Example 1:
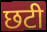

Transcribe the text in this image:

छटी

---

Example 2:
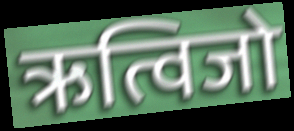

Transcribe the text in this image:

ऋत्विजो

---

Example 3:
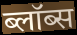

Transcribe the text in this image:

ब्लॉब्स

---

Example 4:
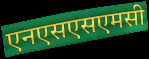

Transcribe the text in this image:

एनएसएसएमसी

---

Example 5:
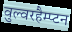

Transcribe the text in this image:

वुल्वरहैम्प्टन